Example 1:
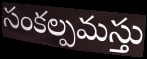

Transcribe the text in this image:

సంకల్పమస్తు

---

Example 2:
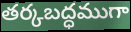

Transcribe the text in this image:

తర్కబద్ధముగా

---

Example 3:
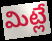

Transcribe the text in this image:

మిట్లే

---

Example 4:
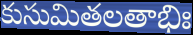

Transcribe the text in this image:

కుసుమితలతాభిః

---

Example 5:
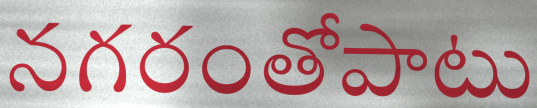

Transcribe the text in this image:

నగరంతోపాటు